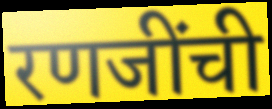
रणजींची